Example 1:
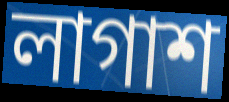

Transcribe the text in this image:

লাগাশ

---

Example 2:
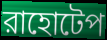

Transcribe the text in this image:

রাহোটেপ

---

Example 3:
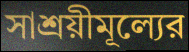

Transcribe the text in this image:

সাশ্রয়ীমূল্যের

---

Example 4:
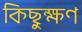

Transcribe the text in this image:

কিছুক্ষণ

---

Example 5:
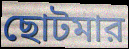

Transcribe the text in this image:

ছোটমার